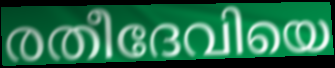
രതീദേവിയെ